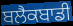
ਬਲੈਕਬਾਡੀ